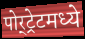
पोर्ट्रेटमध्ये